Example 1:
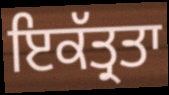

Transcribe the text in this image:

ਇਕੱਤ੍ਰਤਾ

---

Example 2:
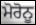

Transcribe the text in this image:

ਮੋਰੋਨੂ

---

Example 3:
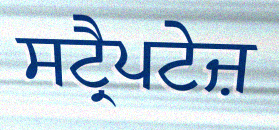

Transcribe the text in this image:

ਸਟ੍ਰੈਪਟੇਜ਼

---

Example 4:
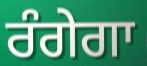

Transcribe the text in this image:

ਰੰਗੇਗਾ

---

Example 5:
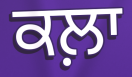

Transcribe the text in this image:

ਕਲ਼ਾ